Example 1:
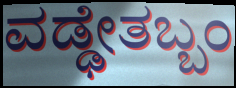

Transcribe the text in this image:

ವಡ್ಢೇತಬ್ಬಂ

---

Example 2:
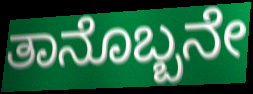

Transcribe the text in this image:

ತಾನೊಬ್ಬನೇ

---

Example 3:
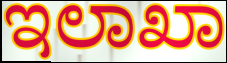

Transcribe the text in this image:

ಇಲಾಖಾ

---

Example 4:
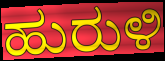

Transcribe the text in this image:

ಹುರುಳಿ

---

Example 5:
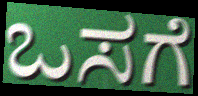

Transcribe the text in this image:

ಒಸಗೆ